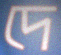
দে